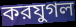
করযুগল